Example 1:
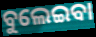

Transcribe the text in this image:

ବୁଲେଇବା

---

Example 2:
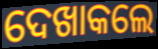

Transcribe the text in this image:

ଦେଖାକଲେ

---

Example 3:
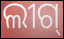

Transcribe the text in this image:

ଲୀଗ୍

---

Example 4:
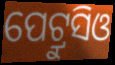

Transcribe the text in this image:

ପେଟ୍ରୁସିଓ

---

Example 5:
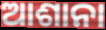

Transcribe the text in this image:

ଆଶାନା